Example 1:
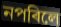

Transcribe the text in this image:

নপৰিলে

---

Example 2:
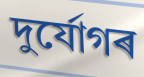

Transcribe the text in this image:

দুৰ্যোগৰ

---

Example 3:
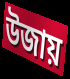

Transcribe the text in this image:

উজায়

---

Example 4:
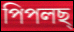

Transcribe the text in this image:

পিপলছ্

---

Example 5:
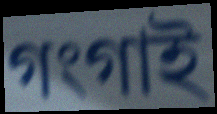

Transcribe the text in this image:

গংগাই